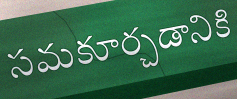
సమకూర్చడానికి